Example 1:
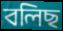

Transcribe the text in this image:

বলিছ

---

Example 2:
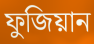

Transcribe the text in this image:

ফুজিয়ান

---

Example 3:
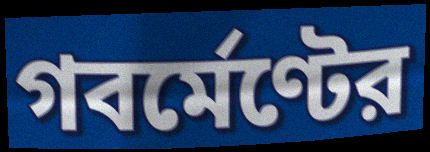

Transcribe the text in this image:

গবর্মেণ্টের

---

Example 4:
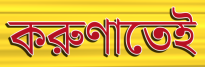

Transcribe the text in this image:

করুণাতেই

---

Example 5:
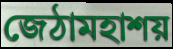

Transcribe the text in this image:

জেঠামহাশয়